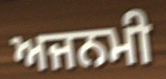
ਅਜਨਮੀ